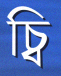
চ্বি